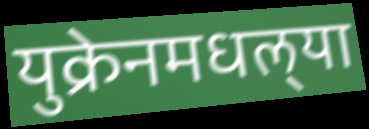
युक्रेनमधल्या